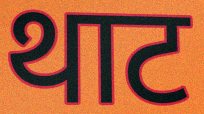
थाट